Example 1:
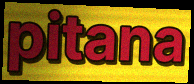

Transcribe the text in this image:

pitana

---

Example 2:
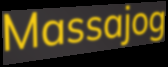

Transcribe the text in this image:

Massajog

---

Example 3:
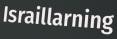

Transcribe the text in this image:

Israillarning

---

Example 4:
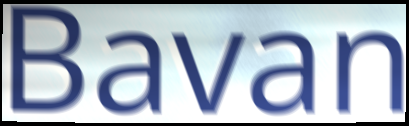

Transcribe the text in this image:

Bavan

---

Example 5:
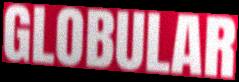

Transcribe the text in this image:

GLOBULAR